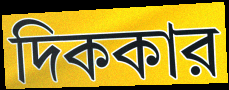
দিককার